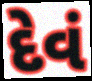
દેવં